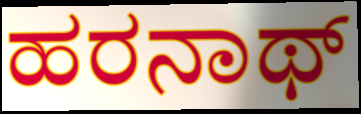
ಹರನಾಥ್